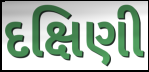
દક્ષિણી